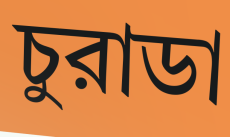
চুরাডা